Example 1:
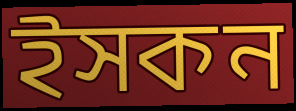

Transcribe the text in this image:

ইসকন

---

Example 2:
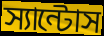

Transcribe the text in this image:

স্যান্টোস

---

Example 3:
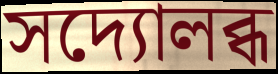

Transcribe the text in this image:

সদ্যোলব্ধ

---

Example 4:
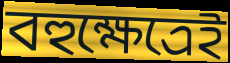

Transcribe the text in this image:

বহুক্ষেত্রেই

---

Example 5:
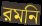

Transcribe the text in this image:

রমনি